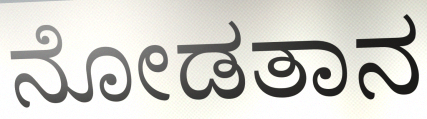
ನೋಡತಾನ